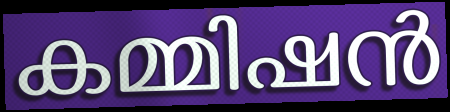
കമ്മിഷൻ